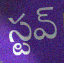
స్టవ్